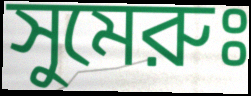
সুমেরুঃ